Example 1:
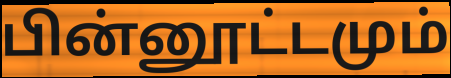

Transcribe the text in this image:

பின்னூட்டமும்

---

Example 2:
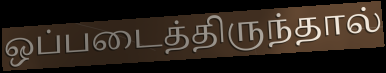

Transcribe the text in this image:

ஒப்படைத்திருந்தால்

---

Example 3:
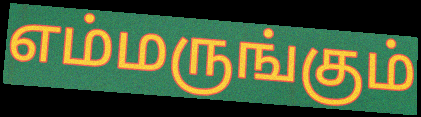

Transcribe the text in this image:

எம்மருங்கும்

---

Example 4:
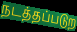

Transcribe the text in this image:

நடத்தப்படுற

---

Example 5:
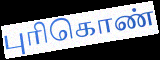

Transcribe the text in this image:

புரிகொண்